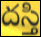
దస్తి